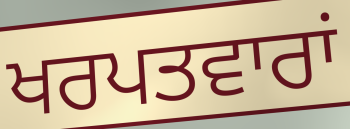
ਖਰਪਤਵਾਰਾਂ